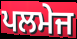
ਪਲਮੇਜ